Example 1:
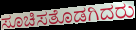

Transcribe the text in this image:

ಸೂಚಿಸತೊಡಗಿದರು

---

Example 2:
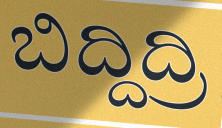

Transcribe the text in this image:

ಬಿದ್ದಿದ್ರಿ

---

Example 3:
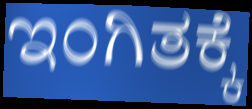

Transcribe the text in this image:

ಇಂಗಿತಕ್ಕೆ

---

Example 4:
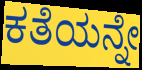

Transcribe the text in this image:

ಕತೆಯನ್ನೇ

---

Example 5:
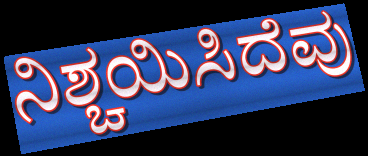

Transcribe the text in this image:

ನಿಶ್ಚಯಿಸಿದೆವು